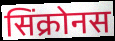
सिंक्रोनस